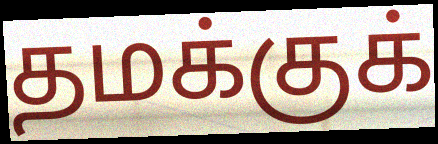
தமக்குக்